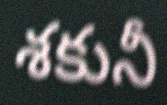
శకునీ